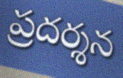
ప్రదర్శన